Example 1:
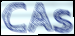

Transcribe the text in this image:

CAs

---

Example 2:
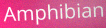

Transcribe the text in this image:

Amphibian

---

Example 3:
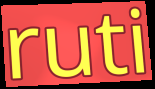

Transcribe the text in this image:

ruti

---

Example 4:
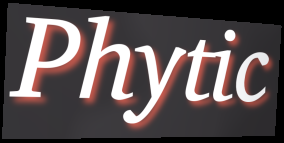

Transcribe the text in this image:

Phytic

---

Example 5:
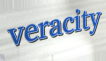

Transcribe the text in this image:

veracity